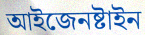
আইজেনষ্টাইন